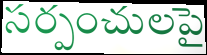
సర్పంచులపై